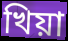
খিয়া